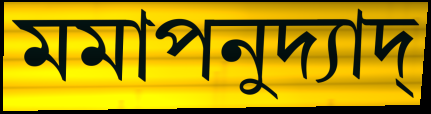
মমাপনুদ্যাদ্